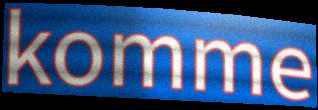
komme